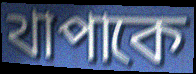
থাপাকে